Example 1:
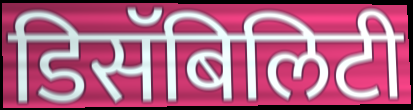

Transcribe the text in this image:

डिसॅबिलिटी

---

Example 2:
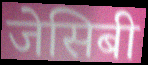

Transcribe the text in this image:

जेसिबी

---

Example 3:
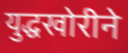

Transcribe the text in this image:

युद्धखोरीने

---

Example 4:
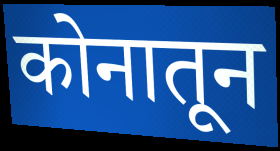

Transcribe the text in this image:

कोनातून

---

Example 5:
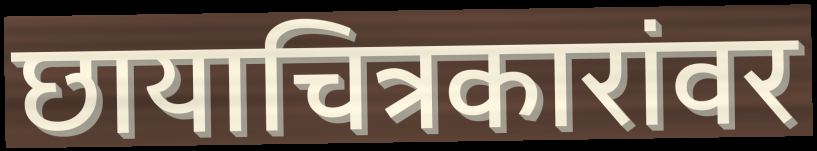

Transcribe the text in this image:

छायाचित्रकारांवर